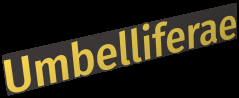
Umbelliferae